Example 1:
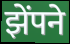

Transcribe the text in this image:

झेंपने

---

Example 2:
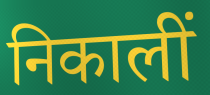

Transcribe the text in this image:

निकालीं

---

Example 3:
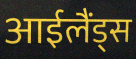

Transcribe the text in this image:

आईलैंड्स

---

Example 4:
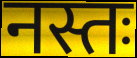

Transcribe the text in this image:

नस्तः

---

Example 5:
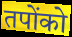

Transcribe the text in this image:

तपोंको